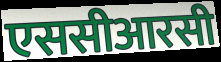
एससीआरसी